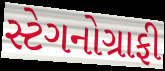
સ્ટેગનોગ્રાફી